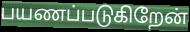
பயணப்படுகிறேன்